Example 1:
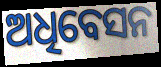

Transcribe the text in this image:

ଅଧିବେସନ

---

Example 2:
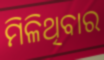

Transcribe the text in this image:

ମିଳିଥିବାର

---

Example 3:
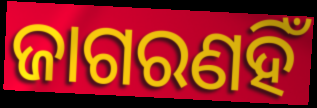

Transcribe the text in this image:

ଜାଗରଣହିଁ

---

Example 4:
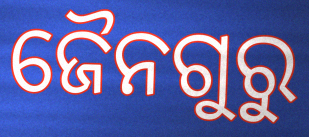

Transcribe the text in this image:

ଜୈନଗୁରୁ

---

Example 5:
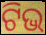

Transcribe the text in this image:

ଟିଭ